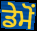
ਡੇਮੋਂ